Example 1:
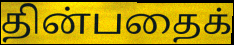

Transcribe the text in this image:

தின்பதைக்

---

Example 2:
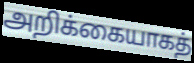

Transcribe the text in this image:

அறிக்கையாகத்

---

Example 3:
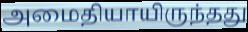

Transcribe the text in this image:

அமைதியாயிருந்தது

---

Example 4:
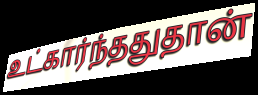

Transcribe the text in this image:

உட்கார்ந்ததுதான்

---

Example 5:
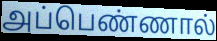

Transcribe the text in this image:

அப்பெண்ணால்